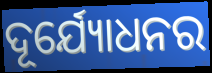
ଦୂର୍ଯ୍ୟୋଧନର